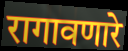
रागावणारे